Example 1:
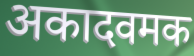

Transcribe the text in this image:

अकादवमक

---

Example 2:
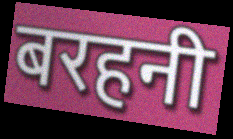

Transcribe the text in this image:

बरहनी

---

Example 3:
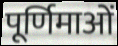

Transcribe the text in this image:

पूर्णिमाओं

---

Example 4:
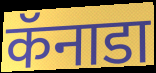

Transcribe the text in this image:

कॅनाडा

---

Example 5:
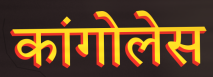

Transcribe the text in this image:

कांगोलेस